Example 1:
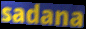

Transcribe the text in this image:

sadana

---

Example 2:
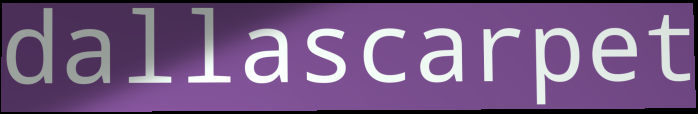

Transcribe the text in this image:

dallascarpet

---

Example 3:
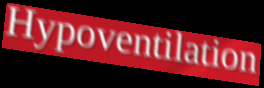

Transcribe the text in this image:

Hypoventilation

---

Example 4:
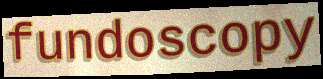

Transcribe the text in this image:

fundoscopy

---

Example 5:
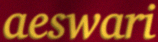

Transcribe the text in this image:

aeswari